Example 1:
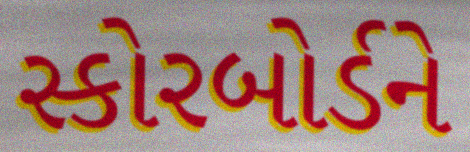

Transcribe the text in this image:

સ્કોરબોર્ડને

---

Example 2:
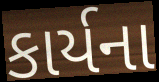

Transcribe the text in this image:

કાર્યના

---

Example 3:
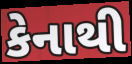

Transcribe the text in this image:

કેનાથી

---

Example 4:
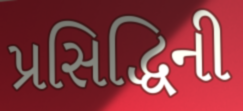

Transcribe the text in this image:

પ્રસિદ્ધિની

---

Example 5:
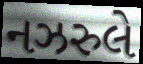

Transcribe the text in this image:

નઝરુલે